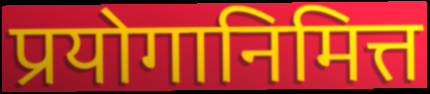
प्रयोगानिमित्त